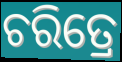
ଚରିତ୍ରେ